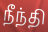
நீந்தி